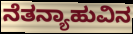
ನೆತನ್ಯಾಹುವಿನ